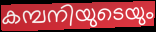
കമ്പനിയുടെയും